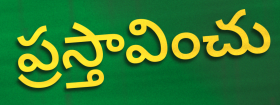
ప్రస్తావించు